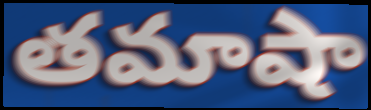
తమాషా